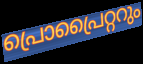
പ്രൊപ്രൈറ്ററും